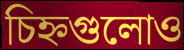
চিহ্নগুলোও